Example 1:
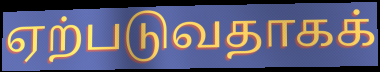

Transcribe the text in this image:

ஏற்படுவதாகக்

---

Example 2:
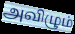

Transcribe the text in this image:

அவிழும்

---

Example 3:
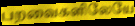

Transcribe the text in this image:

பறவைகளிலேயே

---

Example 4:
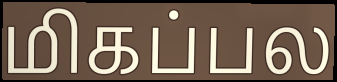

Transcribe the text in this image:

மிகப்பல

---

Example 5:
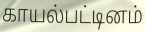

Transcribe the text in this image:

காயல்பட்டினம்